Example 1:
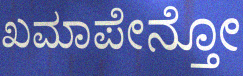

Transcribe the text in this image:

ಖಮಾಪೇನ್ತೋ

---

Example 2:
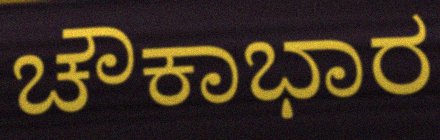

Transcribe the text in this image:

ಚೌಕಾಭಾರ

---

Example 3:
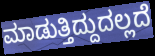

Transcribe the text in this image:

ಮಾಡುತ್ತಿದ್ದುದಲ್ಲದೆ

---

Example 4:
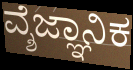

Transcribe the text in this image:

ವ್ಶೆಜ್ಞಾನಿಕ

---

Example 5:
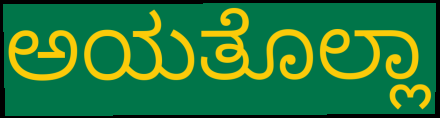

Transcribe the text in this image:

ಅಯತೊಲ್ಲಾ